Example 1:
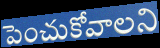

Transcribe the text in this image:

పెంచుకోవాలని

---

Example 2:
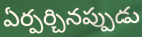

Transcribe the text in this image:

ఏర్పర్చినప్పుడు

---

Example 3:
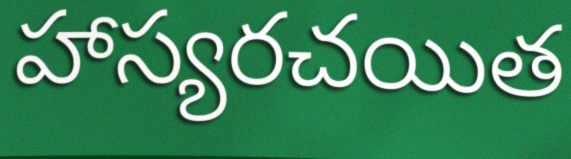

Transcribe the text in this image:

హాస్యరచయిత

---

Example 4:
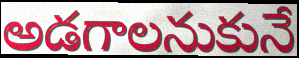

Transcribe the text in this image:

అడగాలనుకునే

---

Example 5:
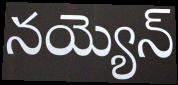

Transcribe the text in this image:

నయ్యెన్